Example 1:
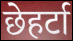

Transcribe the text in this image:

छेहर्टा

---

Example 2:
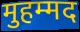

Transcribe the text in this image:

मुह़म्मद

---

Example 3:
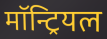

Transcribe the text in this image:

मॉन्ट्रियल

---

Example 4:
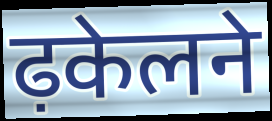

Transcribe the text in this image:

ढ़केलने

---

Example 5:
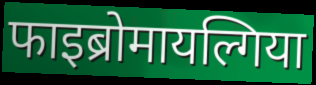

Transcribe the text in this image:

फाइब्रोमायल्गिया